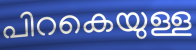
പിറകെയുള്ള